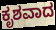
ಕೃಶವಾದ